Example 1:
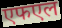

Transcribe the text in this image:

एफएल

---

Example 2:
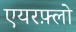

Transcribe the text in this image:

एयरफ़्लो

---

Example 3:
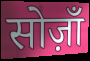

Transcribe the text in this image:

सोज़ाँ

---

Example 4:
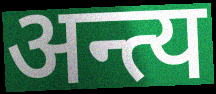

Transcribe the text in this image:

अन्त्य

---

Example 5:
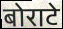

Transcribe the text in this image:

बोराटे